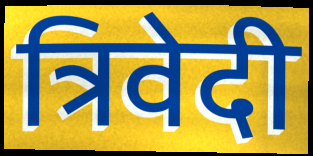
त्रिवेदी